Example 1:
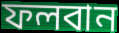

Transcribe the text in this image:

ফলবান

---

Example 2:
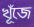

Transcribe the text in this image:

খূঁজে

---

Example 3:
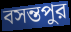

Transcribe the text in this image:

বসন্তপুর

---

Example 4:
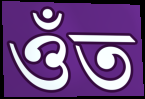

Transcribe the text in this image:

ওঁত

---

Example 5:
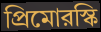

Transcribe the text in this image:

প্রিমোরস্কি